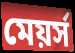
মেয়র্স